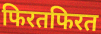
फिरतफिरत